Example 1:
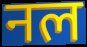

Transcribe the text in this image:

नल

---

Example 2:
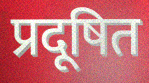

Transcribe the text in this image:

प्रदूषित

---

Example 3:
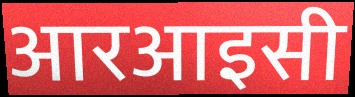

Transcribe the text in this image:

आरआइसी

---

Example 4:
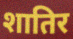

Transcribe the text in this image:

शातिर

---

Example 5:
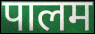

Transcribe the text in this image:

पालम